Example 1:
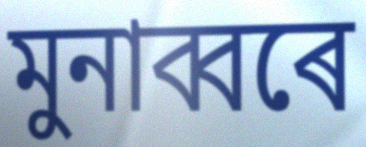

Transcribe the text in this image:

মুনাব্বৰে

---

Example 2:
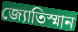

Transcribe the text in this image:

জ্যোতিস্মান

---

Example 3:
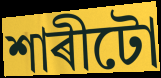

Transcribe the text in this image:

শাৰীটো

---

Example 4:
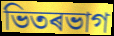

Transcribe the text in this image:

ভিতৰভাগ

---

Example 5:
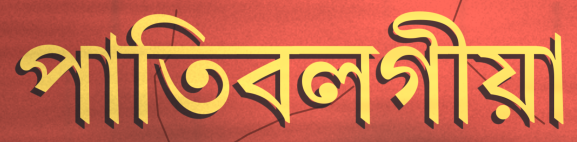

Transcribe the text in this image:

পাতিবলগীয়া